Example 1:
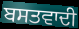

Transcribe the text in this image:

ਬਸਤਵਾਦੀ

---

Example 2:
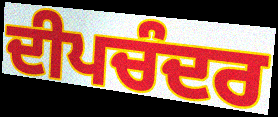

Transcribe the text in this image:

ਦੀਪਚੰਦਰ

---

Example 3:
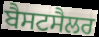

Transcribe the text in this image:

ਬੈਸਟਸੈਲਰ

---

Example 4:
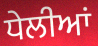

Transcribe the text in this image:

ਧੇਲੀਆਂ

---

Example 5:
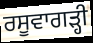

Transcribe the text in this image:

ਰਸੂਵਾਗੜ੍ਹੀ